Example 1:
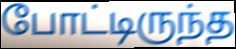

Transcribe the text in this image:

போட்டிருந்த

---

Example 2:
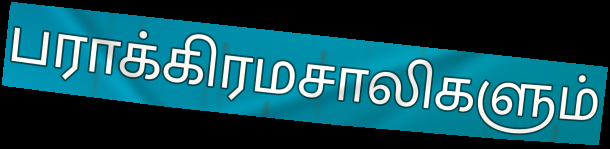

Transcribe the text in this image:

பராக்கிரமசாலிகளும்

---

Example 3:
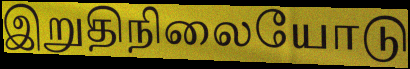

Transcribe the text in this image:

இறுதிநிலையோடு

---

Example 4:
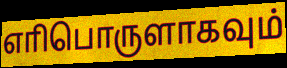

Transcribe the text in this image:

எரிபொருளாகவும்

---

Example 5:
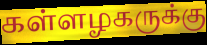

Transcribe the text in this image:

கள்ளழகருக்கு